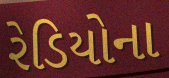
રેડિયોના